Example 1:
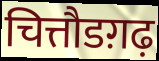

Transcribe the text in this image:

चित्तौडग़ढ़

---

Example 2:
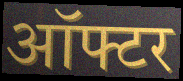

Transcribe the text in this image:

ऑफ्टर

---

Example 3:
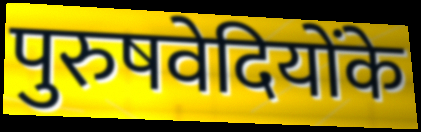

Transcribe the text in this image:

पुरुषवेदियोंके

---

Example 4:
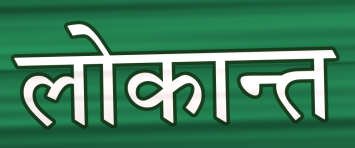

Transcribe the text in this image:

लोकान्त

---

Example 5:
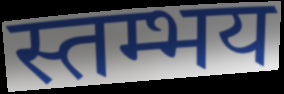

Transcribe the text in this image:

स्तम्भय